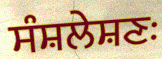
ਸੰਸ਼ਲੇਸ਼ਣਃ